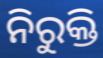
ନିରୁକ୍ତି